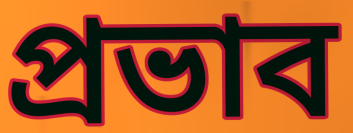
প্রভাব